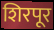
शिरपूर